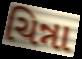
ચિન્ના